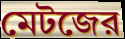
মেটজের